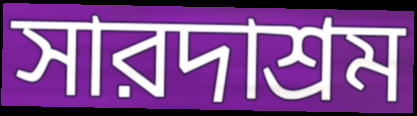
সারদাশ্রম